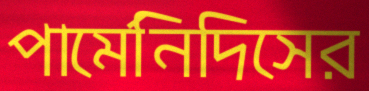
পার্মেনিদিসের